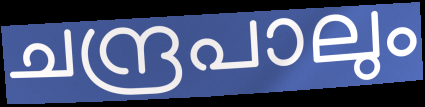
ചന്ദ്രപാലും